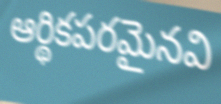
ఆర్థికపరమైనవి